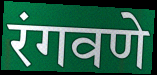
रंगवणे